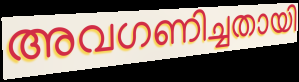
അവഗണിച്ചതായി